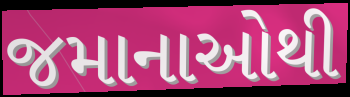
જમાનાઓથી